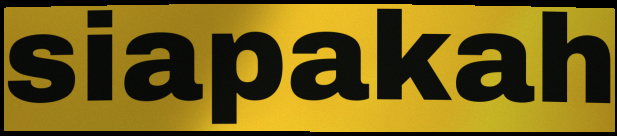
siapakah